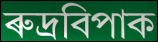
ৰুদ্ৰবিপাক